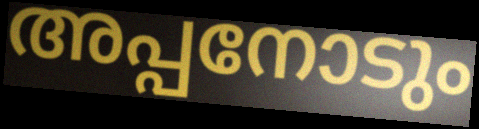
അപ്പനോടും